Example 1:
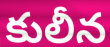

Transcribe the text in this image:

కులీన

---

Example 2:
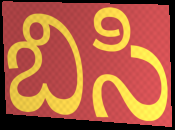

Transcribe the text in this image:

బిసి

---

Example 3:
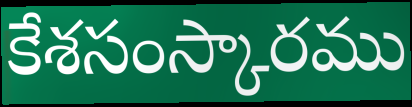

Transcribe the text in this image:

కేశసంస్కారము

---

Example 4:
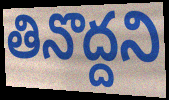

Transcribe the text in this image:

తినొద్దని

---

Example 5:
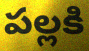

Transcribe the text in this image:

పల్లకి